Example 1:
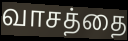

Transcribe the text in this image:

வாசத்தை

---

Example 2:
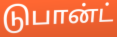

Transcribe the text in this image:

டுபான்ட்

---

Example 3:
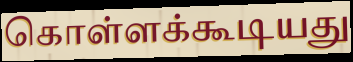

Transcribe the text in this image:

கொள்ளக்கூடியது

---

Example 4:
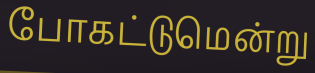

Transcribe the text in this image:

போகட்டுமென்று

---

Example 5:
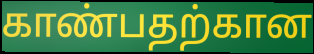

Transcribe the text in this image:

காண்பதற்கான